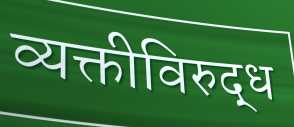
व्यक्तीविरुद्ध